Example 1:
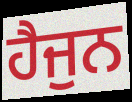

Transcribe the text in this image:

ਹੈਜੁਨ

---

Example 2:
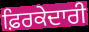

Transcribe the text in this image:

ਫ਼ਿਰਕੇਦਾਰੀ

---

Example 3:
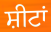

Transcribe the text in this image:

ਸ਼ੀਟਾਂ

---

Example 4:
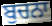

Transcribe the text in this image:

ਬੁਚਨਾ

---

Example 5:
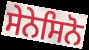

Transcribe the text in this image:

ਸੇਨੇਸਿਨੋ